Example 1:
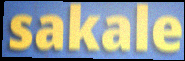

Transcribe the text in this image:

sakale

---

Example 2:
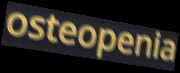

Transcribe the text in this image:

osteopenia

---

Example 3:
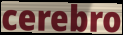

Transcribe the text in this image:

cerebro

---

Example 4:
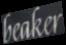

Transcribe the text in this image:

beaker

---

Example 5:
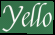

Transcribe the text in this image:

Yello